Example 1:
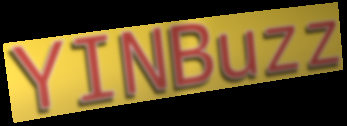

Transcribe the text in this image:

YINBuzz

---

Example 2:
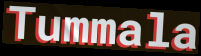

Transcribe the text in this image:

Tummala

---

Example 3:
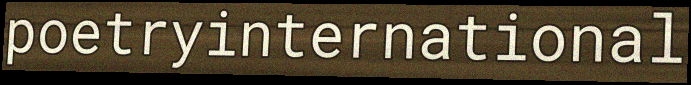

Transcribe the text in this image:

poetryinternational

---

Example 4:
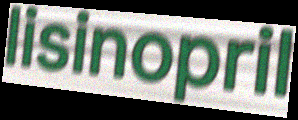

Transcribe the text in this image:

lisinopril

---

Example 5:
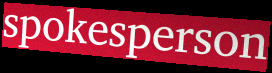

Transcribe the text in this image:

spokesperson